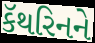
કૅથરિનને